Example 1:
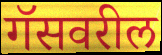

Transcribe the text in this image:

गॅसवरील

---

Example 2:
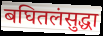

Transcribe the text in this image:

बघितलंसुद्धा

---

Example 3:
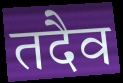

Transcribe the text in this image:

तदैव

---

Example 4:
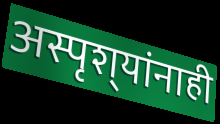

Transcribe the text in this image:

अस्पृश्यांनाही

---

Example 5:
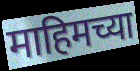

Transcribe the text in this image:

माहिमच्या